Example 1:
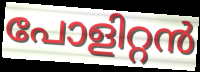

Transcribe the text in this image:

പോളിറ്റൻ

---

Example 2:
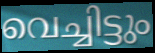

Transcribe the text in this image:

വെച്ചിട്ടും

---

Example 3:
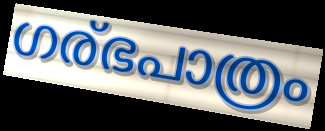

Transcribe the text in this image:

ഗര്ഭപാത്രം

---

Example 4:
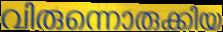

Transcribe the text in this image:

വിരുന്നൊരുക്കിയ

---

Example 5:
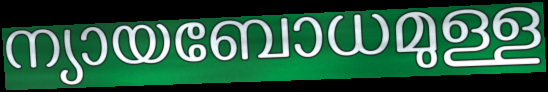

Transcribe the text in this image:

ന്യായബോധമുള്ള